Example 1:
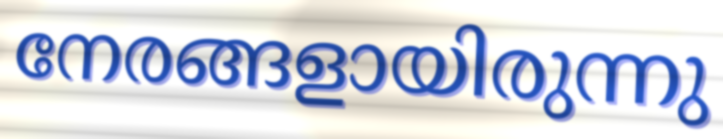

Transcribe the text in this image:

നേരങ്ങളായിരുന്നു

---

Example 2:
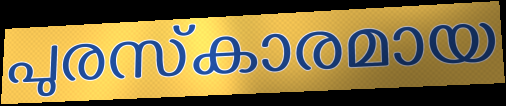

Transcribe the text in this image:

പുരസ്‌കാരമായ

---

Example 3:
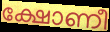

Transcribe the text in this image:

ക്ഷോണീ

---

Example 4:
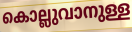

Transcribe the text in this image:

കൊല്ലുവാനുള്ള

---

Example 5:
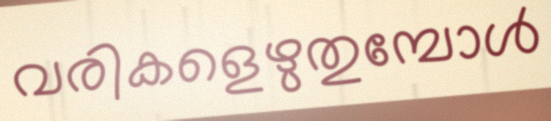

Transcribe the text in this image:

വരികളെഴുതുമ്പോൾ